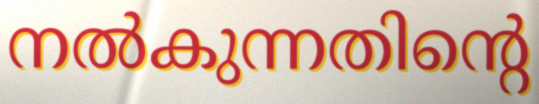
നൽകുന്നതിന്റെ